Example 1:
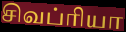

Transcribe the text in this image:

சிவப்ரியா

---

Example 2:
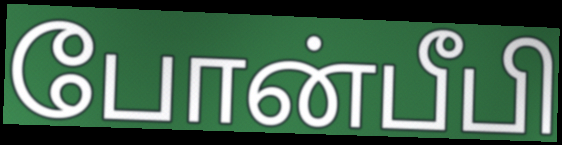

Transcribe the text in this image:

போன்பீபி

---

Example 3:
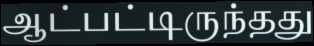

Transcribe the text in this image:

ஆட்பட்டிருந்தது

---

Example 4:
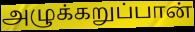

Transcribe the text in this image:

அழுக்கறுப்பான்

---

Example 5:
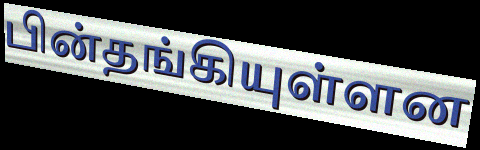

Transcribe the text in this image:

பின்தங்கியுள்ளன